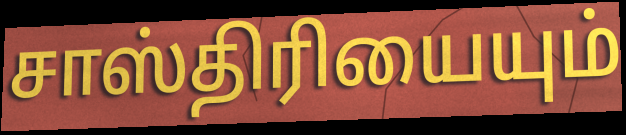
சாஸ்திரியையும்